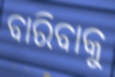
ବାରିବାକୁ